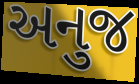
અનુજ